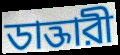
ডাক্তারী